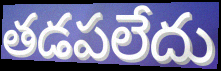
తడపలేదు